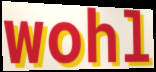
wohl